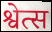
श्वेत्स